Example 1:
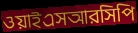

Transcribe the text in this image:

ওয়াইএসআরসিপি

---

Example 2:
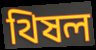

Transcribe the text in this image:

থিষল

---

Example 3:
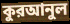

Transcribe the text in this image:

কুরআনুল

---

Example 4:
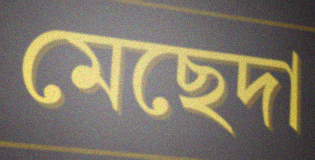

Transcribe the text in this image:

মেছেদা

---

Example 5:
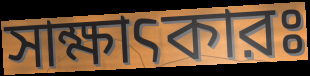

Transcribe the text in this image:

সাক্ষাৎকারঃ